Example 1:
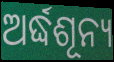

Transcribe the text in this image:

ଅର୍ଦ୍ଧଶୂନ୍ୟ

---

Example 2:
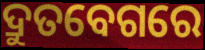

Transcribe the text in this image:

ଦ୍ରୁତବେଗରେ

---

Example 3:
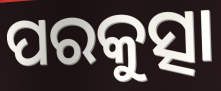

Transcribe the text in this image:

ପରକୁତ୍ସା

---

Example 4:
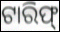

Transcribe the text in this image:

ଟାରିଫ୍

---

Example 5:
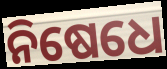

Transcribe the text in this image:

ନିଷେଧେ